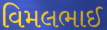
વિમલભાઈ